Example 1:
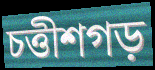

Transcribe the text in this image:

চত্তীশগড়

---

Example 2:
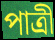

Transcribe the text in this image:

পাত্ৰী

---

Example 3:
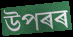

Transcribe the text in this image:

উপৰৰ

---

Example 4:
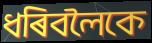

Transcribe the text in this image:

ধৰিবলৈকে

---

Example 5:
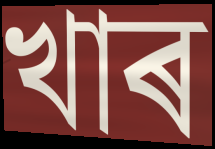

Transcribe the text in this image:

খাৰ